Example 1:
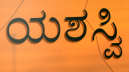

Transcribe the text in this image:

ಯಶಸ್ವಿ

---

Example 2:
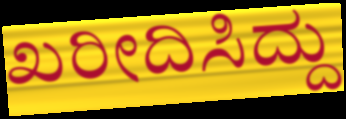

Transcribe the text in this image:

ಖರೀದಿಸಿದ್ದು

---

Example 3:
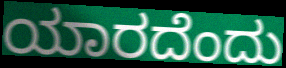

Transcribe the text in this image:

ಯಾರದೆಂದು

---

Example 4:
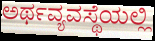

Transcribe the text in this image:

ಅರ್ಥವ್ಯವಸ್ಥೆಯಲ್ಲಿ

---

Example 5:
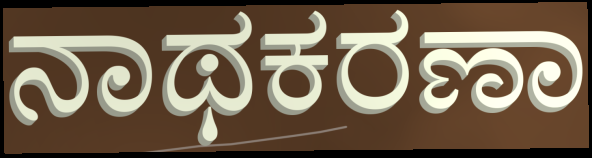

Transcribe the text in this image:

ನಾಥಕರಣಾ